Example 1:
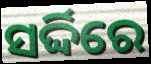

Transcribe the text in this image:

ସର୍ଦ୍ଦିରେ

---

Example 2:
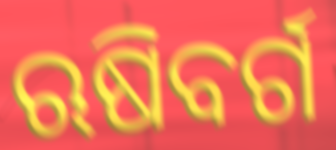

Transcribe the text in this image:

ଋଷିବର୍ଗ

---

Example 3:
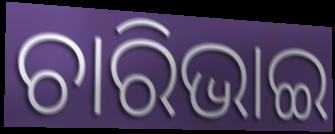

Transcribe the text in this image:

ଚାରିଭାଇ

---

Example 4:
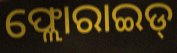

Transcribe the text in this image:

ଫ୍ଲୋରାଇଡ୍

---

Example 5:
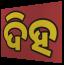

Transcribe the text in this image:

ଦିହ